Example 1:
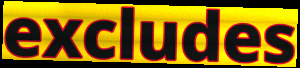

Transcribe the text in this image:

excludes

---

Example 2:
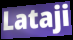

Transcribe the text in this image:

Lataji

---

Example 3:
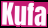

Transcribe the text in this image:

Kufa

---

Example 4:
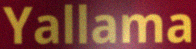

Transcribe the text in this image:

Yallama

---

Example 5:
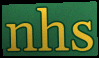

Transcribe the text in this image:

nhs